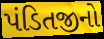
પંડિતજીનો